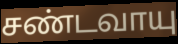
சண்டவாயு